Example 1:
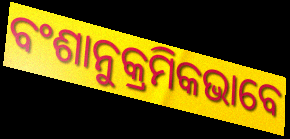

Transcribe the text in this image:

ବଂଶାନୁକ୍ରମିକଭାବେ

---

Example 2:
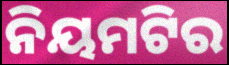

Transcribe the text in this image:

ନିୟମଟିର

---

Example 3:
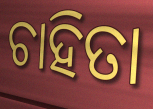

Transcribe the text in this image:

ଚାହିତା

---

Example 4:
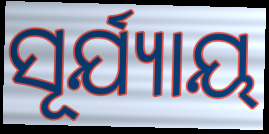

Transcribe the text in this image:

ସୂର୍ଯ୍ୟାୟ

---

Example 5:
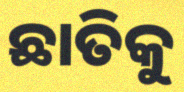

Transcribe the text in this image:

ଛାତିକୁ